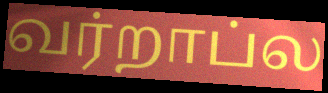
வர்றாப்ல